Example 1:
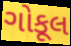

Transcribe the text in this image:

ગોકૂલ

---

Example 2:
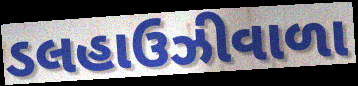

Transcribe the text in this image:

ડલહાઉઝીવાળા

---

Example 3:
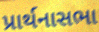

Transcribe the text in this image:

પ્રાર્થનાસભા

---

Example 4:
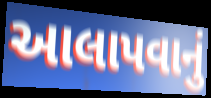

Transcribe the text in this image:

આલાપવાનું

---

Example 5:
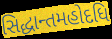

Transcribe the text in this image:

સિદ્ધાન્તમહોદધિ